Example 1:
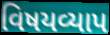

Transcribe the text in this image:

વિષયવ્યાપ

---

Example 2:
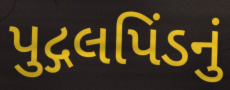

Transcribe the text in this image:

પુદ્ગલપિંડનું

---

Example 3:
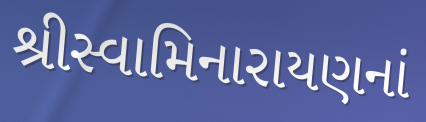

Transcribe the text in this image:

શ્રીસ્વામિનારાયણનાં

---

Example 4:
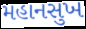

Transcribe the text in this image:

મહાનસુખ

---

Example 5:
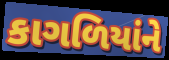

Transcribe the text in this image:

કાગળિયાંને